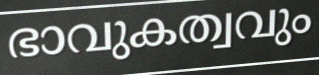
ഭാവുകത്വവും